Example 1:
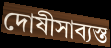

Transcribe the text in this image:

দোষীসাব্যস্ত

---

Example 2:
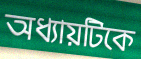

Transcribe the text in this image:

অধ্যায়টিকে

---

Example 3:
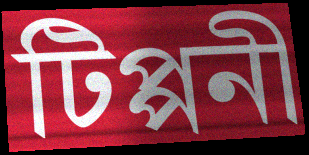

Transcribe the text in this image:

টিপ্পনী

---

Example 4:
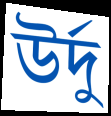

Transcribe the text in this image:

উর্দু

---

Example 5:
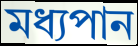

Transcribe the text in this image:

মধ্যপান